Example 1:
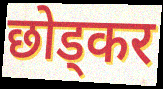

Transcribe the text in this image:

छोड्कर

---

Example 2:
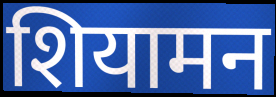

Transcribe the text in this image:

शियामन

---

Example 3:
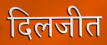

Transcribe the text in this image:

दिलजीत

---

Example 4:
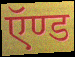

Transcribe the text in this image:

ऍण्ड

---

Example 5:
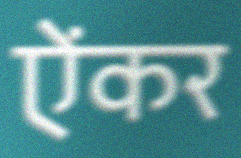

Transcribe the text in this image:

ऐंकर